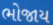
ભોજાય